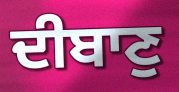
ਦੀਬਾਣੁ